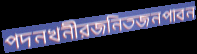
পদনখনীরজনিতজনপাবন